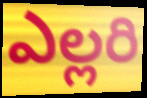
ఎల్లరి